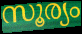
സൂര്യം